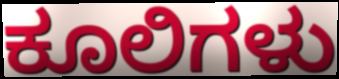
ಕೂಲಿಗಳು